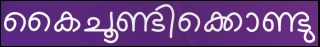
കൈചൂണ്ടിക്കൊണ്ടു